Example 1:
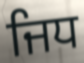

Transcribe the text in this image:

ਜਿਧ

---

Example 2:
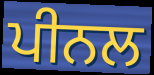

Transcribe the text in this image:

ਪੀਨਲ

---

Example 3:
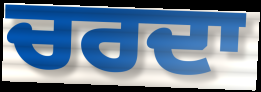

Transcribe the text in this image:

ਚਰਦਾ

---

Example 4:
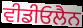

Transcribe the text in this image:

ਵੀਡੀਓਲੈਨ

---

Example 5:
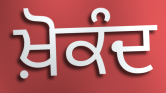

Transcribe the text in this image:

ਖ਼ੋਕੰਦ